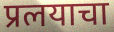
प्रलयाचा